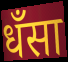
धँसा